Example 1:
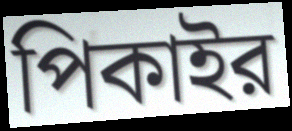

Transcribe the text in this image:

পিকাইর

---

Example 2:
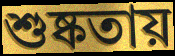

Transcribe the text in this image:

শুষ্কতায়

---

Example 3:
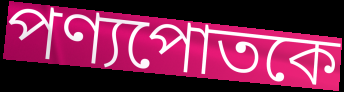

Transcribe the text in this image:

পণ্যপোতকে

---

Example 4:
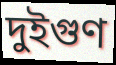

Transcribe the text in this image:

দুইগুণ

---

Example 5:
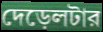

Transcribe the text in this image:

দেড়েলটার